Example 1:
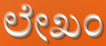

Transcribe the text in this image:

ಲೇಖಂ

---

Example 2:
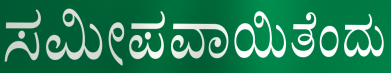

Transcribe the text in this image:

ಸಮೀಪವಾಯಿತೆಂದು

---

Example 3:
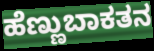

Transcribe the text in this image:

ಹೆಣ್ಣುಬಾಕತನ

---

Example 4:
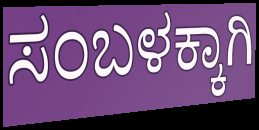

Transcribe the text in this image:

ಸಂಬಳಕ್ಕಾಗಿ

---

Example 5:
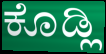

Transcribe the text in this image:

ಕೊಡ್ಲಿ